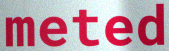
meted